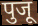
पुजू